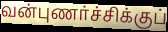
வன்புணர்ச்சிக்குப்